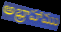
అభ్రాహాము